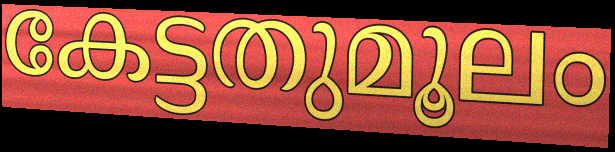
കേട്ടതുമൂലം